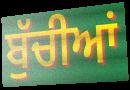
ਬੁੱਚੀਆਂ